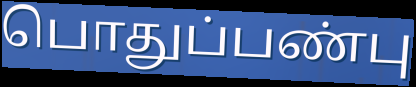
பொதுப்பண்பு